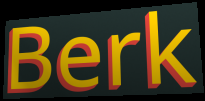
Berk